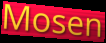
Mosen